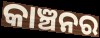
କାଞ୍ଚନର